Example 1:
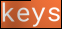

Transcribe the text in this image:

keys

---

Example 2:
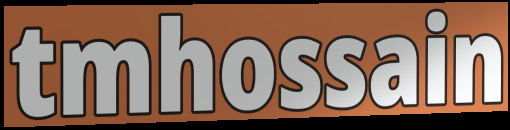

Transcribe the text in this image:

tmhossain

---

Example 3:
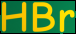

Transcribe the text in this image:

HBr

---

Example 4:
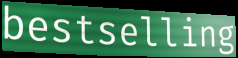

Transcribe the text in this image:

bestselling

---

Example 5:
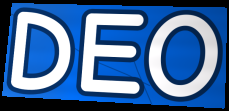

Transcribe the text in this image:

DEO